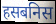
हसबनिस